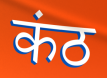
कंठ